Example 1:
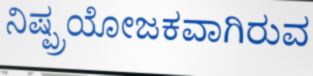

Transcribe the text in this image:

ನಿಷ್ಪ್ರಯೋಜಕವಾಗಿರುವ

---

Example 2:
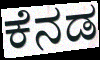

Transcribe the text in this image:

ಕೆನಡ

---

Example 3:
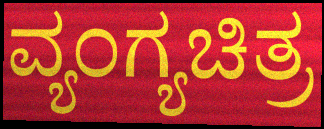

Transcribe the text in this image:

ವ್ಯಂಗ್ಯಚಿತ್ರ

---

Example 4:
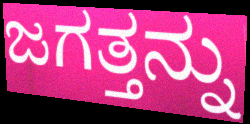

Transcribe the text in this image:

ಜಗತ್ತನ್ನು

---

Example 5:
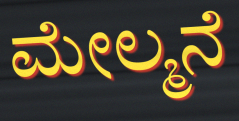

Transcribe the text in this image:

ಮೇಲ್ಮನೆ